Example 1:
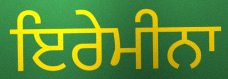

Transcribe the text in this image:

ਇਰੇਮੀਨਾ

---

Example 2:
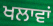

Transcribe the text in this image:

ਖਲਾਵਾਂ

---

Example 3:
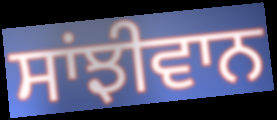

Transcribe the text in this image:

ਸਾਂਝੀਵਾਨ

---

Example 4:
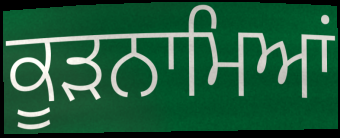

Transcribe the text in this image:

ਕੂੜਨਾਮਿਆਂ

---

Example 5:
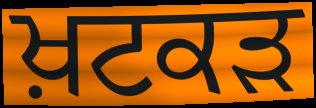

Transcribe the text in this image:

ਖ਼ਟਕੜ